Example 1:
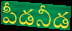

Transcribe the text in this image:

పీడనీడ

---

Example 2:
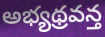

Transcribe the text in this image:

అభ్యథ్రవన్త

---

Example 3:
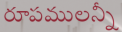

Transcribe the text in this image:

రూపములన్నీ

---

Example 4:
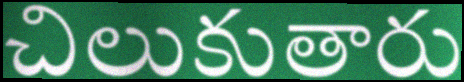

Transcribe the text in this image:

చిలుకుతారు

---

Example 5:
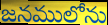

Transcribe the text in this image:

జనములోను